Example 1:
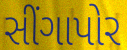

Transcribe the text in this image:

સીંગાપોર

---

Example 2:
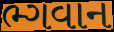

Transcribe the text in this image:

ભ્ગવાન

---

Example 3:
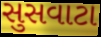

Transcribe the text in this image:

સુસવાટા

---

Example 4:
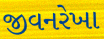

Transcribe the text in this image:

જીવનરેખા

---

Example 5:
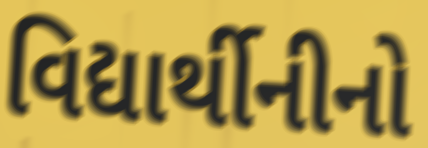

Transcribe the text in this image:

વિદ્યાર્થીનીનો